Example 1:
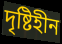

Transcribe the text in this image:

দৃষ্টিহীন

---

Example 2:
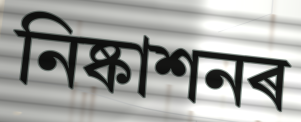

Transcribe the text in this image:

নিষ্কাশনৰ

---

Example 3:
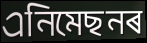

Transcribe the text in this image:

এনিমেছনৰ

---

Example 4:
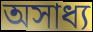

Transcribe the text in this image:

অসাধ্য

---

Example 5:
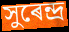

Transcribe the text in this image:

সুৰেন্দ্ৰ